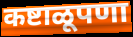
कष्टाळूपणा